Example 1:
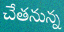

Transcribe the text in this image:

చేతనున్న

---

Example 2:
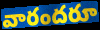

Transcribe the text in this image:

వారందరూ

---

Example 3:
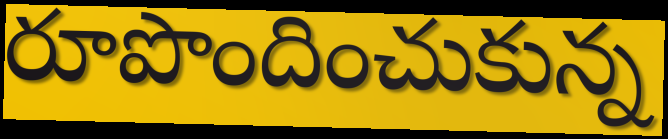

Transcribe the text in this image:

రూపొందించుకున్న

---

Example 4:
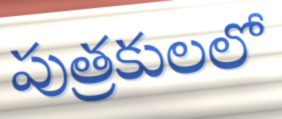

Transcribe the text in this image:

పుత్రకులలో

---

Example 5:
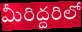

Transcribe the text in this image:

మీరిద్దరిలో